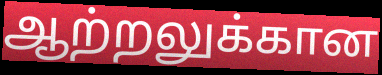
ஆற்றலுக்கான